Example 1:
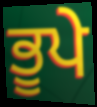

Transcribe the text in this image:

ਭੂਪੇ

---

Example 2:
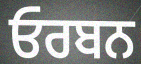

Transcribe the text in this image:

ਓਰਬਨ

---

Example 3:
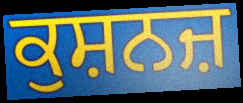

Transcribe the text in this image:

ਕੁਸ਼ਨਜ਼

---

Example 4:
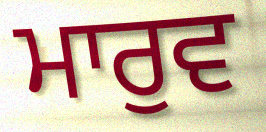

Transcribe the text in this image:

ਮਾਰੁਵ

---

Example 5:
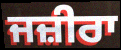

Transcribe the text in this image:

ਜਜ਼ੀਰਾ